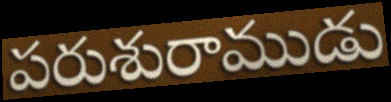
పరుశురాముడు